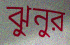
ঝুনুর